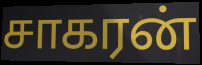
சாகரன்